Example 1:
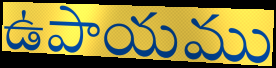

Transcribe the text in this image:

ఉపాయము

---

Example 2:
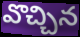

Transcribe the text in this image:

వొచ్చిన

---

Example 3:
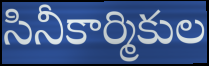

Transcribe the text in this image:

సినీకార్మికుల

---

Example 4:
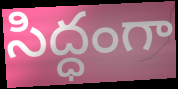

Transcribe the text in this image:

సిద్ధంగా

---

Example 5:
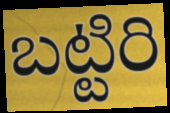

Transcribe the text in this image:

బట్టిరి